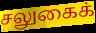
சலுகைக்